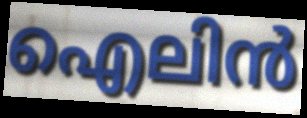
ഐലിൻ